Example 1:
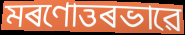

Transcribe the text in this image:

মৰণোত্তৰভাৱে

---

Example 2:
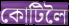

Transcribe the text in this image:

কোটিলৈ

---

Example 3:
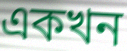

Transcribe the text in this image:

একখন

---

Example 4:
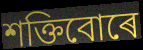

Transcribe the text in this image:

শক্তিবোৰে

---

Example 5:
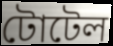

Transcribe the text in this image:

টোটেল